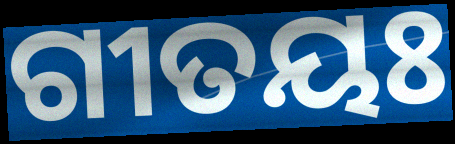
ଗୀତୟଃ